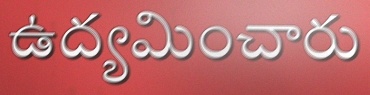
ఉద్యమించారు